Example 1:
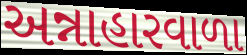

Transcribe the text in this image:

અન્નાહારવાળા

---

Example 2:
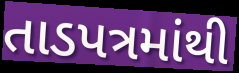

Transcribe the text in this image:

તાડપત્રમાંથી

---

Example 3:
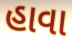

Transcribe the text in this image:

હાવા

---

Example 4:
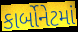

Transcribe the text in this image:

કાર્બોનેટમાં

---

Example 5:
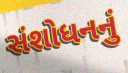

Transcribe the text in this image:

સંશોધનનું